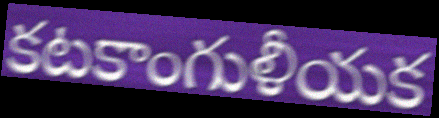
కటకాంగుళీయక